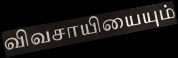
விவசாயியையும்